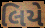
લિયે